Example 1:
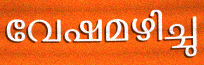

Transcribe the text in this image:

വേഷമഴിച്ചു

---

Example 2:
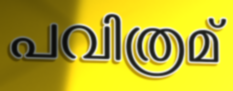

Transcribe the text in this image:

പവിത്രമ്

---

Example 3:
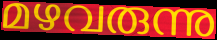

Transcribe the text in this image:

മഴവരുന്നു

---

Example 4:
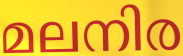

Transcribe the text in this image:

മലനിര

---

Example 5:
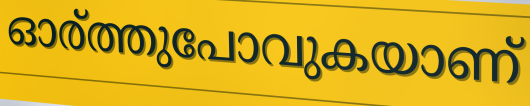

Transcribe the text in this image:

ഓര്ത്തുപോവുകയാണ്